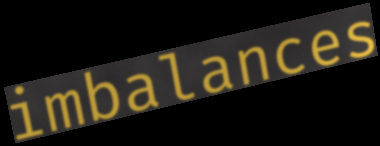
imbalances